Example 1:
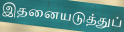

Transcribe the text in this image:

இதனையடுத்துப்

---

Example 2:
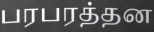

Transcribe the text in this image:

பரபரத்தன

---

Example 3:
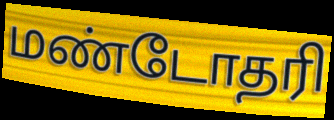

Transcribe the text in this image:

மண்டோதரி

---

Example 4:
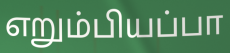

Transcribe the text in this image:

எறும்பியப்பா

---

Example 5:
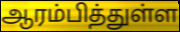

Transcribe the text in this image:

ஆரம்பித்துள்ள